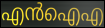
എൻഐഎ